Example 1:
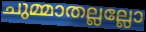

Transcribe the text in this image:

ചുമ്മാതല്ലല്ലോ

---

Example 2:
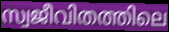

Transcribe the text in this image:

സ്വജീവിതത്തിലെ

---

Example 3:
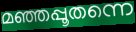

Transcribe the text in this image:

മഞ്ഞപ്പൂതന്നെ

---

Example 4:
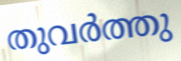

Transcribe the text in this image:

തുവർത്തു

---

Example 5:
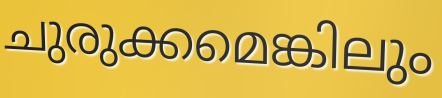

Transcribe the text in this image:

ചുരുക്കമെങ്കിലും